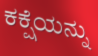
ಕಕ್ಷೆಯನ್ನು